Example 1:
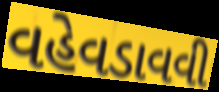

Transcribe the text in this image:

વહેવડાવવી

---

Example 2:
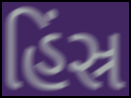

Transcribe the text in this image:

હિંસ્ર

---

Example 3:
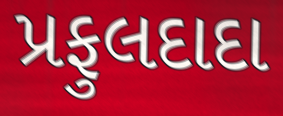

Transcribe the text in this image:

પ્રફુલદાદા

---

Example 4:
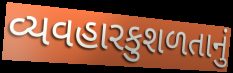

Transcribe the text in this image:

વ્યવહારકુશળતાનું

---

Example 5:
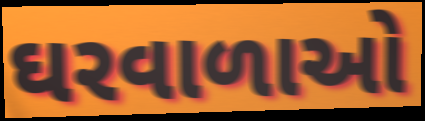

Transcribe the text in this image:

ઘરવાળાઓ